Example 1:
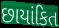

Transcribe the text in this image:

છાયાંકિત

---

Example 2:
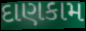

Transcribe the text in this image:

દાણકામ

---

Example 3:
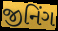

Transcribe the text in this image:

જીનિંગ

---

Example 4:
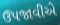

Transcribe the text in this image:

ઉપજાવીએ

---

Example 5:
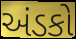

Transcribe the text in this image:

અંડકો